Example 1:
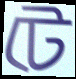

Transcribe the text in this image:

টে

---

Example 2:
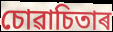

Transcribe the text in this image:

চোৱাচিতাৰ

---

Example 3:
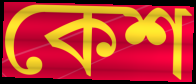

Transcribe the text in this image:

কেশ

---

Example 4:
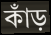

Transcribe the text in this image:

কাঁড়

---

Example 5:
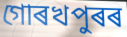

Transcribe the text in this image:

গোৰখপুৰৰ